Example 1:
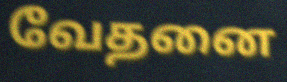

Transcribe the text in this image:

வேதனை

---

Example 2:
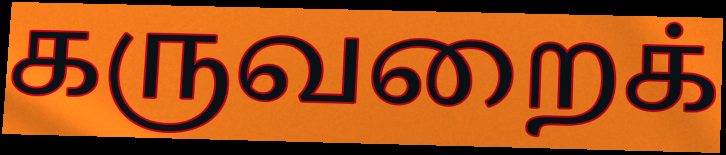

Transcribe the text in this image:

கருவறைக்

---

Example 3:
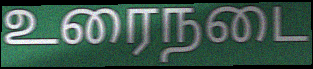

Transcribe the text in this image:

உரைநடை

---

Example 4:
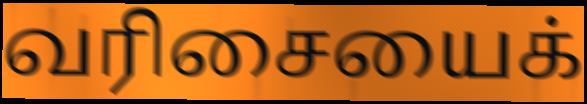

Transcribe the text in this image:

வரிசையைக்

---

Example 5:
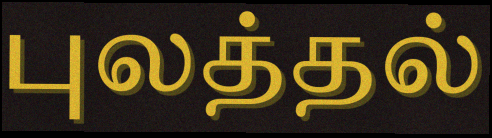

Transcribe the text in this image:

புலத்தல்